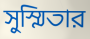
সুস্মিতার